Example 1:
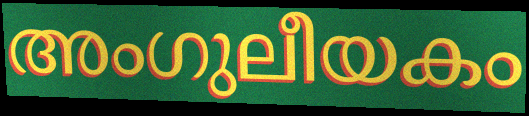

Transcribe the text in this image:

അംഗുലീയകം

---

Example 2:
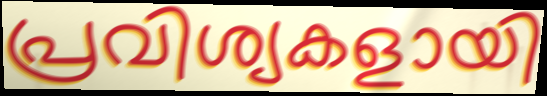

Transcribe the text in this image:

പ്രവിശ്യകളായി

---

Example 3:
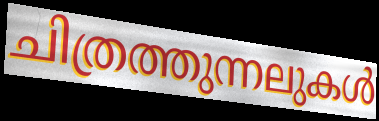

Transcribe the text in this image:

ചിത്രത്തുന്നലുകൾ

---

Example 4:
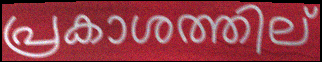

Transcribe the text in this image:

പ്രകാശത്തില്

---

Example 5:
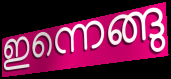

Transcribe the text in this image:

ഇന്നെങ്ങു